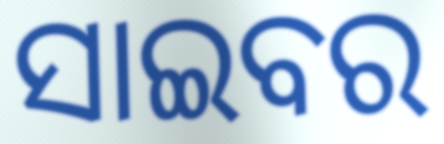
ସାଇବର